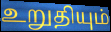
உறுதியும்